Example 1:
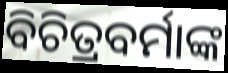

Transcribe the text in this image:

ବିଚିତ୍ରବର୍ମାଙ୍କ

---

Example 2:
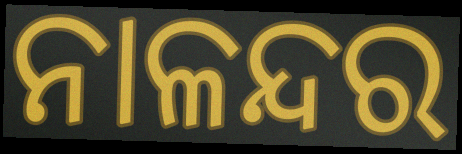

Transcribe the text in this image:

ନାଳନ୍ଦର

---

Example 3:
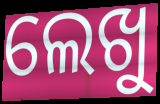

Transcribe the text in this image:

ଲେଖୁ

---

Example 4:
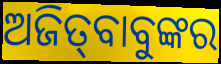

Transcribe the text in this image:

ଅଜିତ୍‍ବାବୁଙ୍କର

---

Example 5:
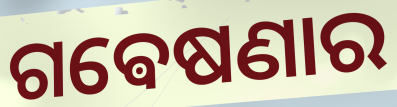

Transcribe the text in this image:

ଗଵେଷଣାର